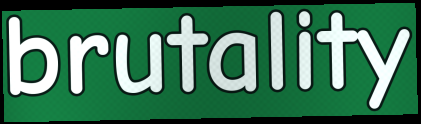
brutality